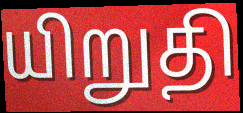
யிறுதி